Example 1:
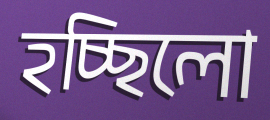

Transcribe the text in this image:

হচ্ছিলো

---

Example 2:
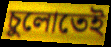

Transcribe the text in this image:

চুলোতেই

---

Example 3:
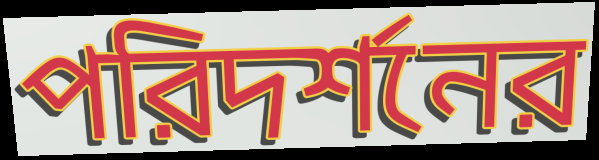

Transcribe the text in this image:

পরিদর্শনের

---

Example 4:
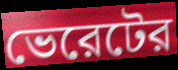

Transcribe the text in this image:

ভেরেটের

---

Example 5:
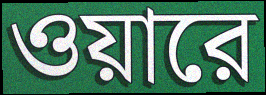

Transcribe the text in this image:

ওয়ারে